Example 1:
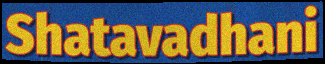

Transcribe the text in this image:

Shatavadhani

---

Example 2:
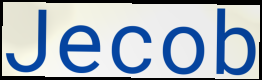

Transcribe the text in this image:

Jecob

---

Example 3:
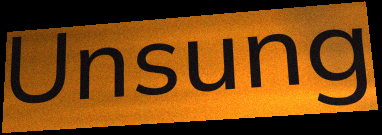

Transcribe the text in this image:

Unsung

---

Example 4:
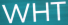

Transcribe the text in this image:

WHT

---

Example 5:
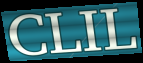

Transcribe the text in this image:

CLIL